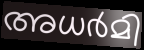
അധർമി